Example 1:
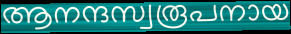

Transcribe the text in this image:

ആനന്ദസ്വരൂപനായ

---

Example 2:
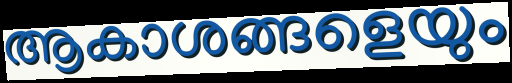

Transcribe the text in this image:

ആകാശങ്ങളെയും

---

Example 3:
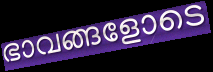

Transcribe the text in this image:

ഭാവങ്ങളോടെ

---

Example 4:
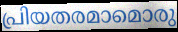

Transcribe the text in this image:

പ്രിയതരമാമൊരു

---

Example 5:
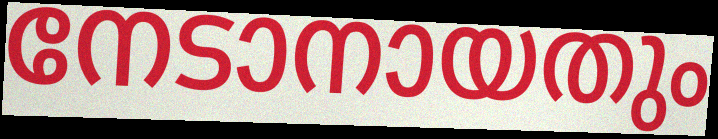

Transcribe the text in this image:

നേടാനായതും